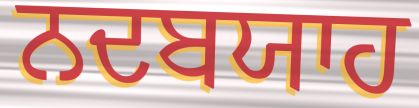
ਨਦਬਯਾਹ